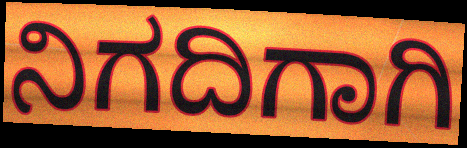
ನಿಗದಿಗಾಗಿ